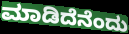
ಮಾಡಿದೆನೆಂದು